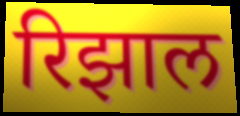
रिझाल